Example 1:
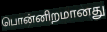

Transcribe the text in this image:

பொன்னிறமானது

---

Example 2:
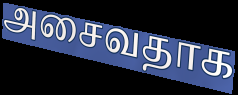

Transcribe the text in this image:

அசைவதாக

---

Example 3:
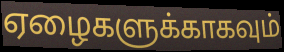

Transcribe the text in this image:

ஏழைகளுக்காகவும்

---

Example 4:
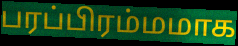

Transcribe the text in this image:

பரப்பிரம்மமாக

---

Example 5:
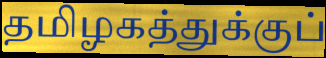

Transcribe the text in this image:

தமிழகத்துக்குப்